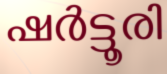
ഷർട്ടൂരി